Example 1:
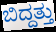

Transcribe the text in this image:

ಬಿದ್ದತ್ತು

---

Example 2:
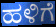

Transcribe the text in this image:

ಹಳಿಗೆ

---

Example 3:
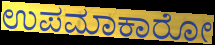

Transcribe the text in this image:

ಉಪಮಾಕಾರೋ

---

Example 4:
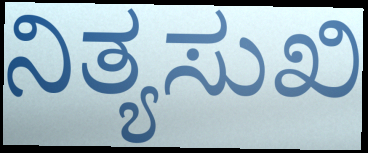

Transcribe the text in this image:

ನಿತ್ಯಸುಖಿ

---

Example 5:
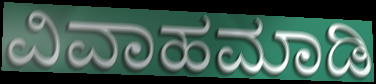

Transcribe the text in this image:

ವಿವಾಹಮಾಡಿ